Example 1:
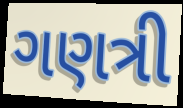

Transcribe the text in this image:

ગણત્રી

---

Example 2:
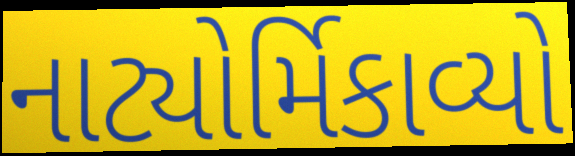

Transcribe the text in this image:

નાટ્યોર્મિકાવ્યો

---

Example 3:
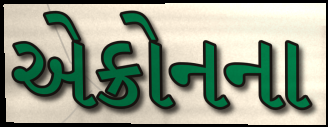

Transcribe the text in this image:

એક્રોનના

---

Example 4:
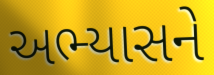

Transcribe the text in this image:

અભ્યાસને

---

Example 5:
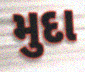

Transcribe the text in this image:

મુદા